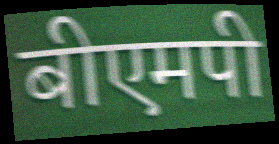
बीएमपी